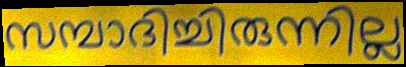
സമ്പാദിച്ചിരുന്നില്ല